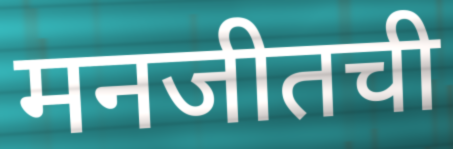
मनजीतची